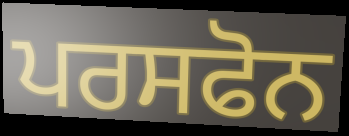
ਪਰਸਫੋਨ